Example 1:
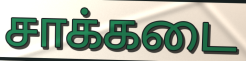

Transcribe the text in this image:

சாக்கடை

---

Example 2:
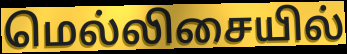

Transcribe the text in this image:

மெல்லிசையில்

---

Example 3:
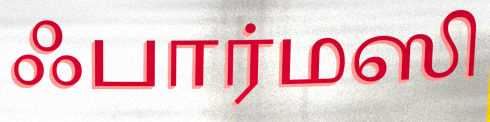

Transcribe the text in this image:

ஃபார்மஸி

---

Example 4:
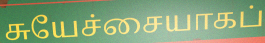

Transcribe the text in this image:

சுயேச்சையாகப்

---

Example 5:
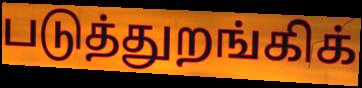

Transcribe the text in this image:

படுத்துறங்கிக்